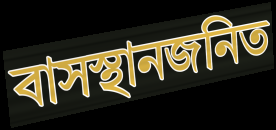
বাসস্থানজনিত